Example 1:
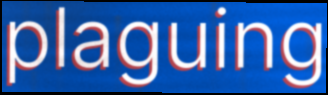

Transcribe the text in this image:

plaguing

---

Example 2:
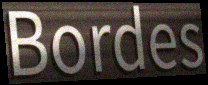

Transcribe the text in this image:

Bordes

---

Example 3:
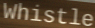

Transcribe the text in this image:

Whistle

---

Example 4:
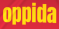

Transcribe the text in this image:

oppida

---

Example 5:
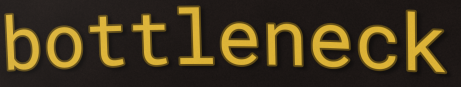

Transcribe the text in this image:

bottleneck